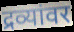
द्रव्यांवर